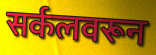
सर्कलवरून